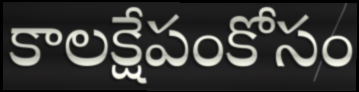
కాలక్షేపంకోసం